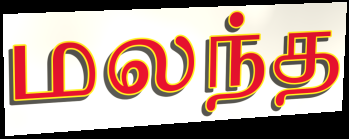
மலந்த